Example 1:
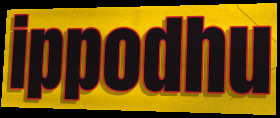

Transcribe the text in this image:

ippodhu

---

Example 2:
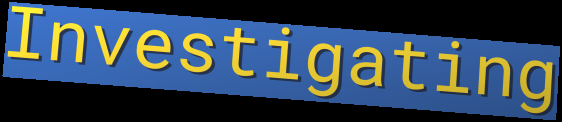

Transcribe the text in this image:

Investigating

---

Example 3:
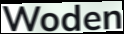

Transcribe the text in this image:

Woden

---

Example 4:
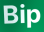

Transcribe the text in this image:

Bip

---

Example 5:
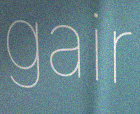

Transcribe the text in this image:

gair